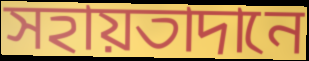
সহায়তাদানে